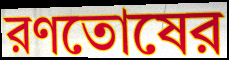
রণতোষের